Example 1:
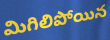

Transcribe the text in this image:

మిగిలిపోయిన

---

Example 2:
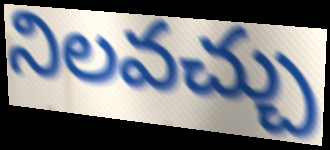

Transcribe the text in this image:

నిలవచ్చు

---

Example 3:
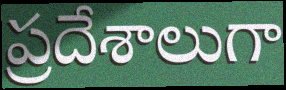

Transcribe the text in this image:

ప్రదేశాలుగా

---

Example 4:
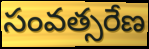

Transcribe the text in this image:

సంవత్సరేణ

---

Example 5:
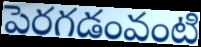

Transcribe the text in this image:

పెరగడంవంటి